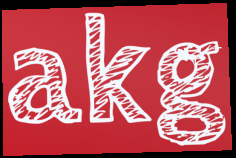
akg